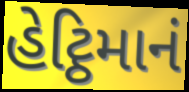
હેટ્ઠિમાનં